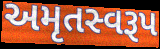
અમૃતસ્વરૂપ